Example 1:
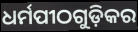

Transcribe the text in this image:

ଧର୍ମପୀଠଗୁଡ଼ିକର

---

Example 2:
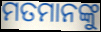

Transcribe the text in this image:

ମତମାନଙ୍କୁ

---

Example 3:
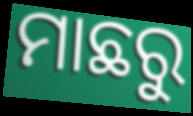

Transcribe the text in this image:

ମାଛରୁ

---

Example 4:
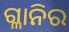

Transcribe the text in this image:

ଗ୍ଳାନିର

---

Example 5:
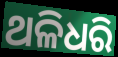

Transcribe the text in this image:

ଥଳିଧରି